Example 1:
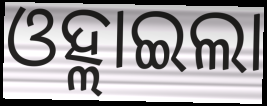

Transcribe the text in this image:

ଓହ୍ଲାଇଲା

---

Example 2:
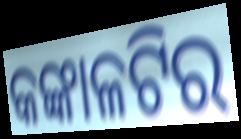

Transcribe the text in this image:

କଙ୍କାଳଟିର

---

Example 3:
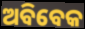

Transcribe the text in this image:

ଅବିବେକ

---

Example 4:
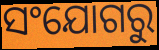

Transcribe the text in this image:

ସଂଯୋଗରୁ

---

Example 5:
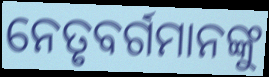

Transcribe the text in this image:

ନେତୃବର୍ଗମାନଙ୍କୁ